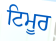
ਟਿਮੂਰ